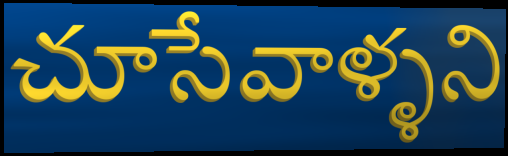
చూసేవాళ్ళని